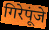
गिरेपूंजे